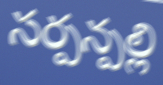
సర్పన్పల్లి